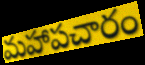
మహాపచారం